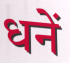
धनें